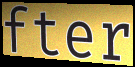
fter